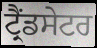
ਟ੍ਰੈਂਡਸੇਟਰ